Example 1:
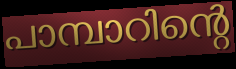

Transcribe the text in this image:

പാമ്പാറിന്റെ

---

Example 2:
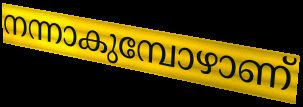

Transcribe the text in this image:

നന്നാകുമ്പോഴാണ്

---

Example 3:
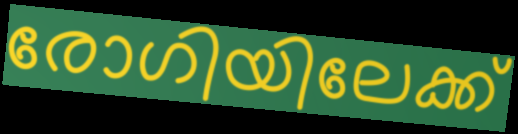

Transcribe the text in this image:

രോഗിയിലേക്ക്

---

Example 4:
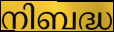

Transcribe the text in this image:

നിബദ്ധ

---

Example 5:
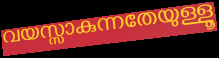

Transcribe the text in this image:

വയസ്സാകുന്നതേയുള്ളൂ